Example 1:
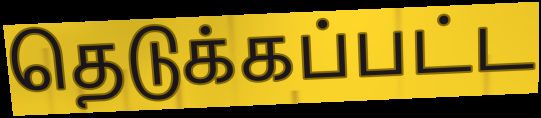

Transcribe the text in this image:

தெடுக்கப்பட்ட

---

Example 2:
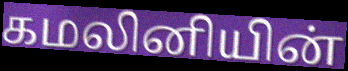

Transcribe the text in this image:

கமலினியின்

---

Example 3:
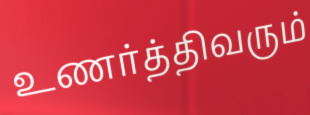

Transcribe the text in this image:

உணர்த்திவரும்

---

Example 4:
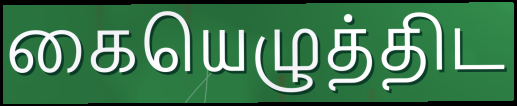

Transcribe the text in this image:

கையெழுத்திட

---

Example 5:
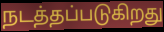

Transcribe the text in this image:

நடத்தப்படுகிறது